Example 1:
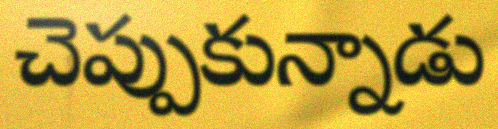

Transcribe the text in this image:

చెప్పుకున్నాడు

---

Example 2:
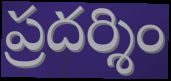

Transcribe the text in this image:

ప్రదర్శిం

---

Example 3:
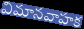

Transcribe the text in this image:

విమానవాహక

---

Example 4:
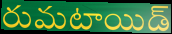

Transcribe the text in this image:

రుమటాయిడ్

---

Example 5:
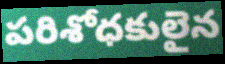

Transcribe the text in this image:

పరిశోధకులైన